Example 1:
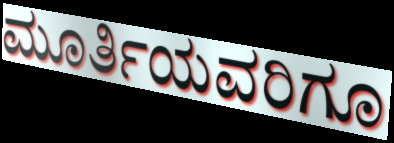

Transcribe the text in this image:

ಮೂರ್ತಿಯವರಿಗೂ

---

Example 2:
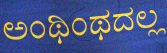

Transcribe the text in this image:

ಅಂಥಿಂಥದಲ್ಲ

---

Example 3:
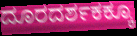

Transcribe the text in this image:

ದೂರದರ್ಶಕಕ್ಕೂ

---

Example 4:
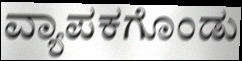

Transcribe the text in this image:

ವ್ಯಾಪಕಗೊಂಡು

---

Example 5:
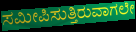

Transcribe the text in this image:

ಸಮೀಪಿಸುತ್ತಿರುವಾಗಲೇ